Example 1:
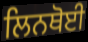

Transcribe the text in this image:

ਲਿਨਥੋਈ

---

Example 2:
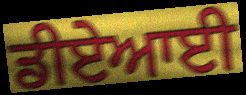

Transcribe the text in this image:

ਡੀਏਆਈ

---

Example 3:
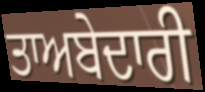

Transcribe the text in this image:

ਤਾਅਬੇਦਾਰੀ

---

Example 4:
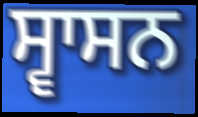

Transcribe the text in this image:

ਸ੍ਵਾਸਨ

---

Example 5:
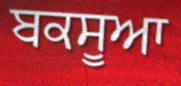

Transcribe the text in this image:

ਬਕਸੂਆ